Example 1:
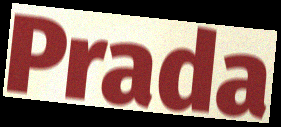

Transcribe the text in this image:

Prada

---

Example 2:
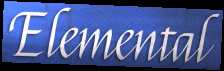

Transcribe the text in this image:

Elemental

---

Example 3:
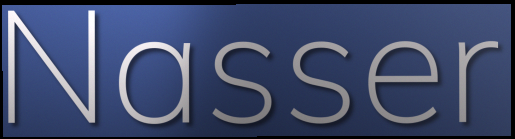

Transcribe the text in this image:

Nasser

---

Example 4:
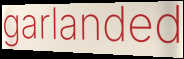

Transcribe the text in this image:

garlanded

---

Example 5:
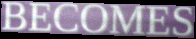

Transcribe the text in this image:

BECOMES